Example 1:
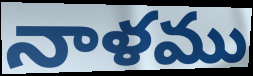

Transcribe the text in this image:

నాళము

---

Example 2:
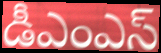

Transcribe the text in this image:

డీఎంఎస్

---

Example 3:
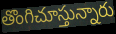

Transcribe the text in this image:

తొంగిచూస్తున్నారు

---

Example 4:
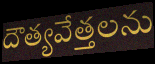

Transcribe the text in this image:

దౌత్యవేత్తలను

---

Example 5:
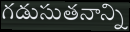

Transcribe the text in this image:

గడుసుతనాన్ని